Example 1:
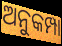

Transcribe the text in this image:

ଅନୁକମ୍ପା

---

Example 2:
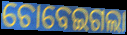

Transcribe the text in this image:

ଚୋବେଇଗଲା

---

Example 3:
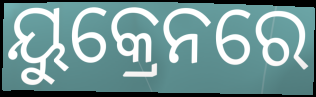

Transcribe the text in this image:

ୟୁକ୍ରେନରେ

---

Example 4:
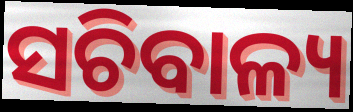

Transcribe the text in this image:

ସଚିବାଳ୍ୟ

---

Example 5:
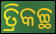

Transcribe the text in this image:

ତ୍ରିକଚ୍ଛ